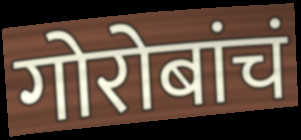
गोरोबांचं